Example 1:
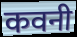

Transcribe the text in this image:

कवनी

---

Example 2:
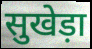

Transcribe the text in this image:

सुखेड़ा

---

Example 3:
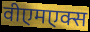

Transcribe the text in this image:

वीएमएक्स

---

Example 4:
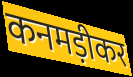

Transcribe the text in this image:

कनमड़ीकर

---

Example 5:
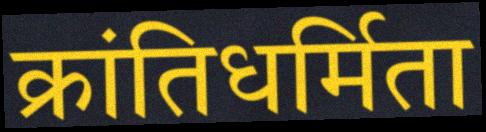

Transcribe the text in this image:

क्रांतिधर्मिता